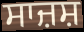
ਸਾਜ਼ਸ਼